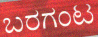
ಬರಗಂಟ